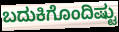
ಬದುಕಿಗೊಂದಿಷ್ಟು